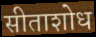
सीताशोध